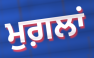
ਮੁਗ਼ਲਾਂ